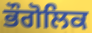
ਭੌਗੋਲਿਕ